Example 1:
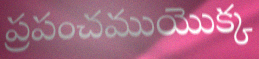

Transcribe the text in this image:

ప్రపంచముయొక్క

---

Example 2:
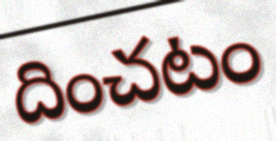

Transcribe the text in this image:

దించటం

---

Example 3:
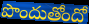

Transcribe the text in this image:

పొందుతోందో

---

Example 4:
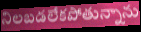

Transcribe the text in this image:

నిలబడలేకపోతున్నాను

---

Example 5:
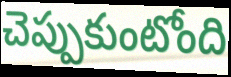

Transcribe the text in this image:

చెప్పుకుంటోంది